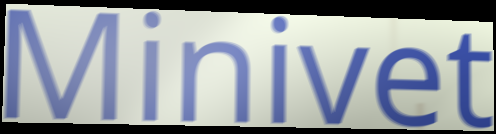
Minivet